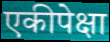
एकीपेक्षा